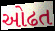
ઓઢત